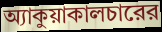
অ্যাকুয়াকালচারের